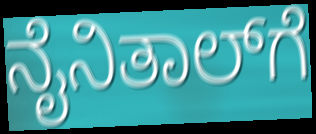
ನೈನಿತಾಲ್‌ಗೆ